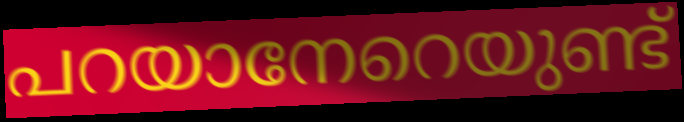
പറയാനേറെയുണ്ട്